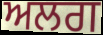
ਅਲਗ